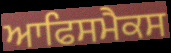
ਆਫਿਸਮੈਕਸ